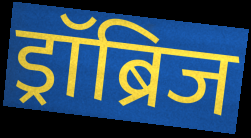
ड्रॉब्रिज